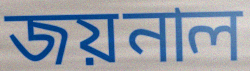
জয়নাল